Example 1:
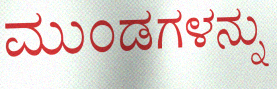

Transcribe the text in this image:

ಮುಂಡಗಳನ್ನು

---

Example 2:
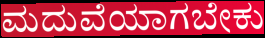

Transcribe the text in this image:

ಮದುವೆಯಾಗಬೇಕು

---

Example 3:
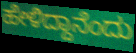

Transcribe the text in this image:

ಹೇಳಿದ್ದಾನೆಂದು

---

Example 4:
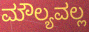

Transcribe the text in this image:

ಮೌಲ್ಯವಲ್ಲ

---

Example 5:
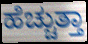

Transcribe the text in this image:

ಹೆಚ್ಚುತ್ತಾ